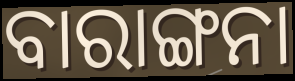
ବାରାଙ୍ଗନା